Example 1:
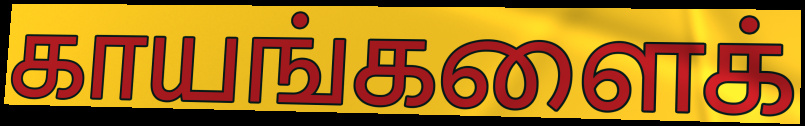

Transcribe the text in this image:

காயங்களைக்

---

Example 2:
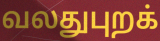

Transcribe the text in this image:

வலதுபுறக்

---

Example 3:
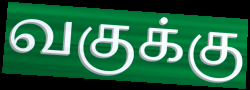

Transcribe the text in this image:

வகுக்கு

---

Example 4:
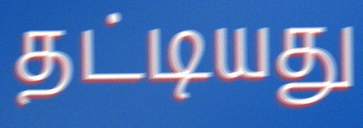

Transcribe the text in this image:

தட்டியது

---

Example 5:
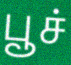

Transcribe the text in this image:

பூச்